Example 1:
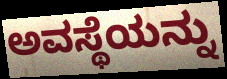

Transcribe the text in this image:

ಅವಸ್ಥೆಯನ್ನು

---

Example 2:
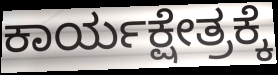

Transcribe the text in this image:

ಕಾರ್ಯಕ್ಷೇತ್ರಕ್ಕೆ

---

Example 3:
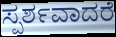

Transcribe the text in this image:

ಸ್ಪರ್ಶವಾದರೆ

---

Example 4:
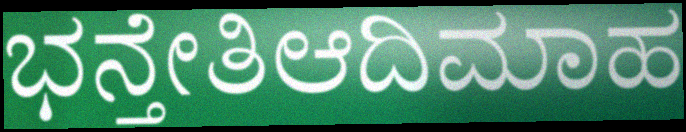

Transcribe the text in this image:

ಭನ್ತೇತಿಆದಿಮಾಹ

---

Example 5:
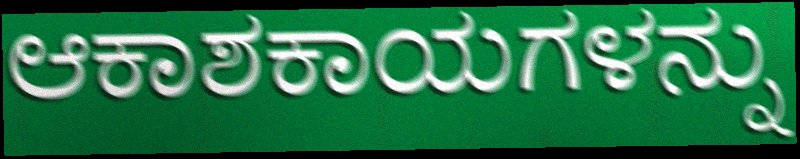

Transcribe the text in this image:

ಆಕಾಶಕಾಯಗಳನ್ನು